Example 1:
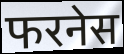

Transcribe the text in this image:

फरनेस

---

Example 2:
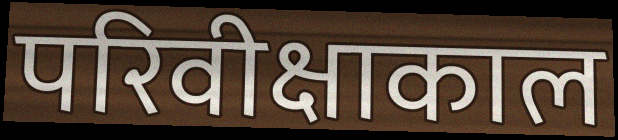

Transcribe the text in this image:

परिवीक्षाकाल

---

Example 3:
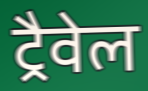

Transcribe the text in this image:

ट्रैवेल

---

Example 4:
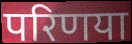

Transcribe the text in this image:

परिणया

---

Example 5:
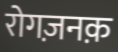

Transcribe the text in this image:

रोगज़नक़